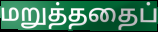
மறுத்ததைப்